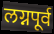
लग्नपूर्व